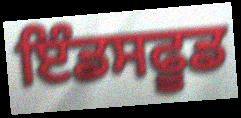
ਇੰਡਸਫੂਡ